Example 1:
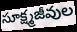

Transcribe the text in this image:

సూక్ష్మజీవుల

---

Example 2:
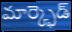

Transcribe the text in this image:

మార్క్ఫెడ్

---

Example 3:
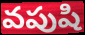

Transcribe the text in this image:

వపుషి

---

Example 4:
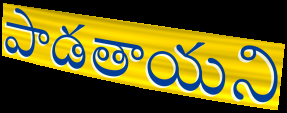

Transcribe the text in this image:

పాడతాయని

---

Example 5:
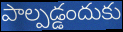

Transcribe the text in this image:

పాల్పడ్డందుకు